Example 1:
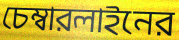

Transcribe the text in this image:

চেম্বারলাইনের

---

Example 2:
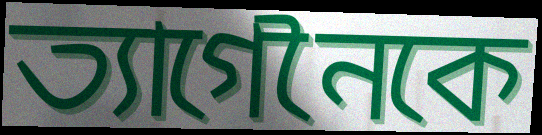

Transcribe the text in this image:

ত্যাগেনৈকে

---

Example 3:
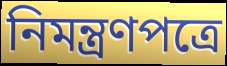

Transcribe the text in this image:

নিমন্ত্রণপত্রে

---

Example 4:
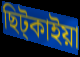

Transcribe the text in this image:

ছিট্কাইয়া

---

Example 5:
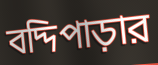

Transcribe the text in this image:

বদ্দিপাড়ার